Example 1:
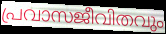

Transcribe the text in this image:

പ്രവാസജീവിതവും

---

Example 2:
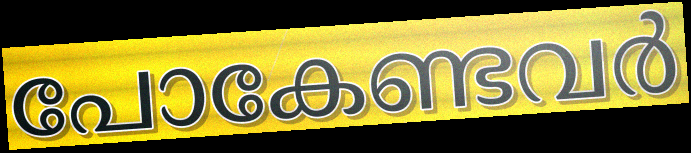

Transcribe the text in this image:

പോകേണ്ടവർ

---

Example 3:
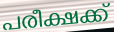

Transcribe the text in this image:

പരീക്ഷക്ക്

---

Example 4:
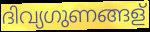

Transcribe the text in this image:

ദിവ്യഗുണങ്ങള്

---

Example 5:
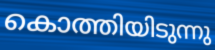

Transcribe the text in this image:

കൊത്തിയിടുന്നു